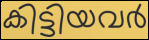
കിട്ടിയവർ